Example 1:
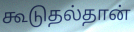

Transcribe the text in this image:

கூடுதல்தான்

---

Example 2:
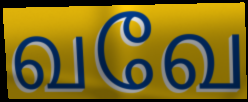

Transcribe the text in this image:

வவே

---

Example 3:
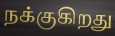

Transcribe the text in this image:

நக்குகிறது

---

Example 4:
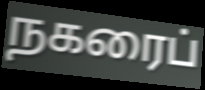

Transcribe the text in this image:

நகரைப்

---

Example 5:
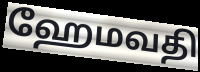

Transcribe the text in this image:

ஹேமவதி